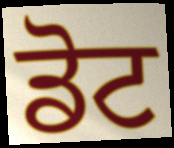
ਡੋਟ